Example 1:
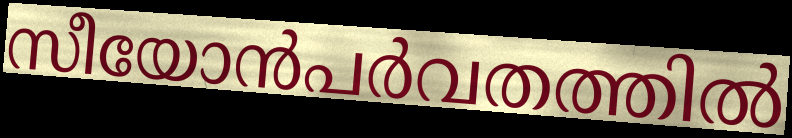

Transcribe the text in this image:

സീയോൻപർവതത്തിൽ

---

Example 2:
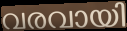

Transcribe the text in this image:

വരവായി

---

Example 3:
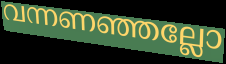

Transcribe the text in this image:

വന്നണഞ്ഞല്ലോ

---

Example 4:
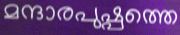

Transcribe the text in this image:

മന്ദാരപുഷ്പത്തെ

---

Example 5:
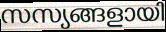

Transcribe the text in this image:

സസ്യങ്ങളായി